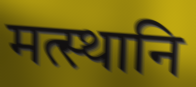
मत्स्थानि